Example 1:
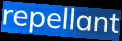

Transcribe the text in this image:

repellant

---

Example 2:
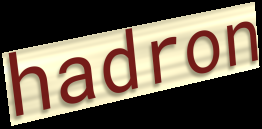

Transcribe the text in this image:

hadron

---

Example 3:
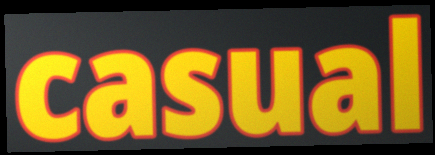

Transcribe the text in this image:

casual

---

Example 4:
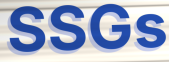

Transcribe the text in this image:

SSGs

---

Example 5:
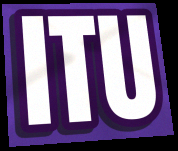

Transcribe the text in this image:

ITU